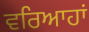
ਵਰਿਆਹਾਂ